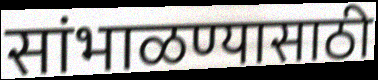
सांभाळण्यासाठी